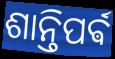
ଶାନ୍ତିପର୍ଵ